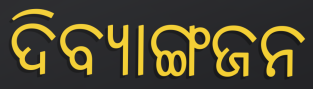
ଦିବ୍ୟାଙ୍ଗଜନ